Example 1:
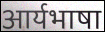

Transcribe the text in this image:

आर्यभाषा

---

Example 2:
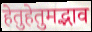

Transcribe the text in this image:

हेतुहेतुमद्भाव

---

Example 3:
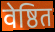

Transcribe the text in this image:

वेष्ठित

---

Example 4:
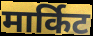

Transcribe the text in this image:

मार्किट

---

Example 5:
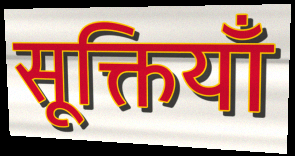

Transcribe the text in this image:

सूक्तियाँ